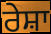
ਰੇਸ਼ਾ